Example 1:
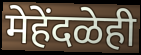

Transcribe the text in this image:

मेहेंदळेही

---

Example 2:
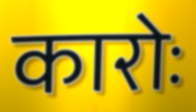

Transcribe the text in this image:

कारोः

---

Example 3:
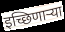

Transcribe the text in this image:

इच्छिणार्‍या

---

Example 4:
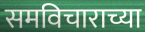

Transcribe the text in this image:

समविचाराच्या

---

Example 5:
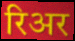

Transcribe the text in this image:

रिअर